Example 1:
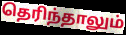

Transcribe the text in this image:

தெரிந்தாலும்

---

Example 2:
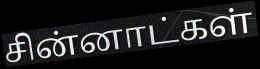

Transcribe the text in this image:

சின்னாட்கள்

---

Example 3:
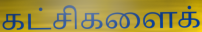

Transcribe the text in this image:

கட்சிகளைக்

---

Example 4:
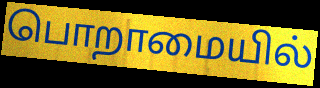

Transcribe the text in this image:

பொறாமையில்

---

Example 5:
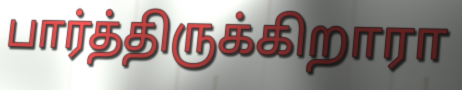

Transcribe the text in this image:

பார்த்திருக்கிறாரா